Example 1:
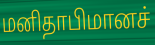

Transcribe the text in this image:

மனிதாபிமானச்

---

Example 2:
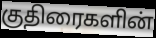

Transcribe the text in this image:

குதிரைகளின்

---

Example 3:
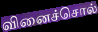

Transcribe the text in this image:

வினைச்சொல்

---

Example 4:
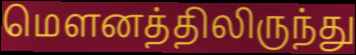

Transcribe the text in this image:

மௌனத்திலிருந்து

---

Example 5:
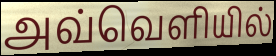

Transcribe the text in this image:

அவ்வெளியில்